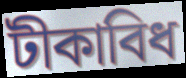
টীকাবিধ